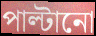
পাল্টানো